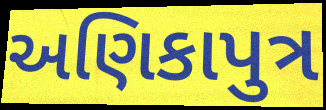
અણિકાપુત્ર